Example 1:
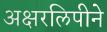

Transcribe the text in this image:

अक्षरलिपीने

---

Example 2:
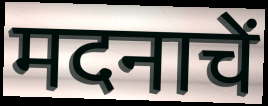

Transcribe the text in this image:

मदनाचें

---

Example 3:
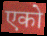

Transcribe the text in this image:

एको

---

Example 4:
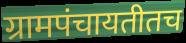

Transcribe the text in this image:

ग्रामपंचायतीतच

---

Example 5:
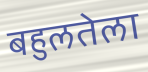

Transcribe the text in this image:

बहुलतेला